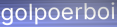
golpoerboi